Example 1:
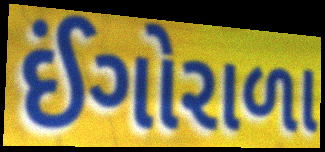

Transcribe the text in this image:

ઈંગોરાળા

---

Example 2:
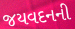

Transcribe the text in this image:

જયવદનની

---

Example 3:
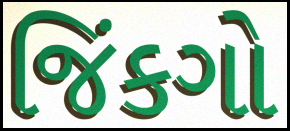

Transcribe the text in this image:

જિંકગો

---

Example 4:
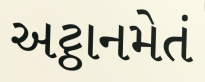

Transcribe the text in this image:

અટ્ઠાનમેતં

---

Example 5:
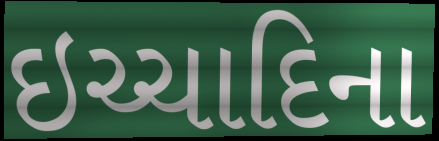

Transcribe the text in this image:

ઇચ્ચાદિના